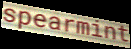
spearmint